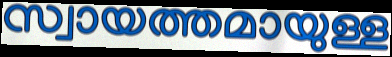
സ്വായത്തമായുള്ള